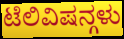
ಟೆಲಿವಿಷನ್ಗಳು